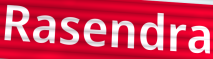
Rasendra